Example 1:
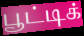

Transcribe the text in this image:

பூட்டிக்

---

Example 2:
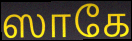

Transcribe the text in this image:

ஸாகே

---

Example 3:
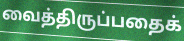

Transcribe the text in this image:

வைத்திருப்பதைக்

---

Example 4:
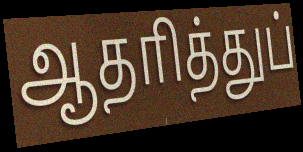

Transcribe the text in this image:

ஆதரித்துப்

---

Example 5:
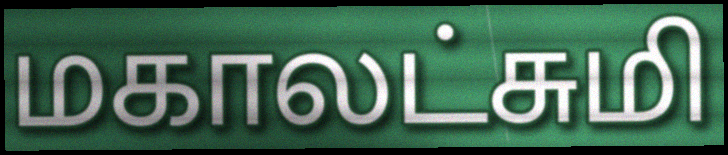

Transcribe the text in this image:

மகாலட்சுமி